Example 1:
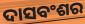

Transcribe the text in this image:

ଦାସବଂଶର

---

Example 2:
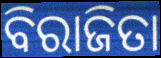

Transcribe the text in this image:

ବିରାଜିତା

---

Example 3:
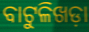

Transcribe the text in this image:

ବାଟୁଳିଖଡ଼ା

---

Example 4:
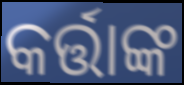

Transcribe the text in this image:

କର୍ତ୍ତାଙ୍କ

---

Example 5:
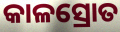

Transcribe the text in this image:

କାଳସ୍ରୋତ